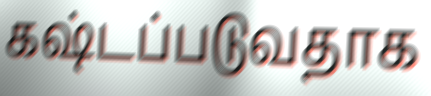
கஷ்டப்படுவதாக